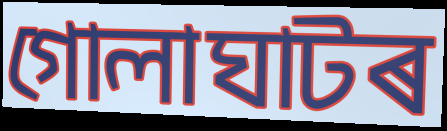
গোলাঘাটৰ